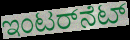
ಇಂಟರ್‌ನೆಟ್